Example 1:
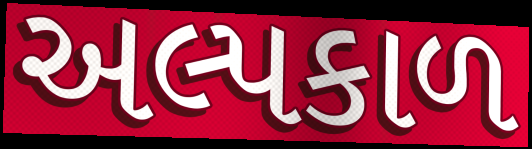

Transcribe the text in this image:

અલ્પકાળ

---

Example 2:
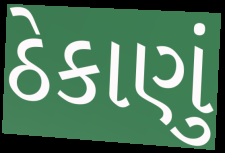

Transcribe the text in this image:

ઠેકાણું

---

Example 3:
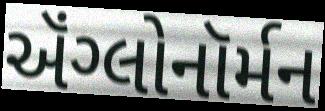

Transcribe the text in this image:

ઍંગ્લોનૉર્મન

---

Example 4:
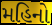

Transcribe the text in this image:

મહિનો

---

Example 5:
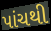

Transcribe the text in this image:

પાંચથી